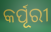
କର୍ପୂରୀ